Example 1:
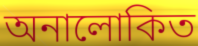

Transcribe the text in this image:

অনালোকিত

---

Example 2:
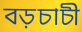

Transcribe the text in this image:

বড়চাচী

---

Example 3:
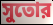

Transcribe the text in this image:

সুতোর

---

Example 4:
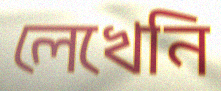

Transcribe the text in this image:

লেখেনি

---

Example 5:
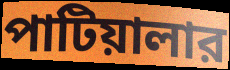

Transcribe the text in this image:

পাটিয়ালার